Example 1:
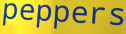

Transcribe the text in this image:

peppers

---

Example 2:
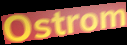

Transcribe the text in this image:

Ostrom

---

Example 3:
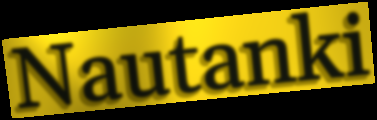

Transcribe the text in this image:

Nautanki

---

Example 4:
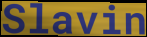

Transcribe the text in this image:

Slavin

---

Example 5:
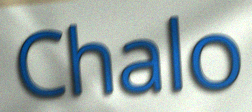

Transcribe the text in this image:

Chalo